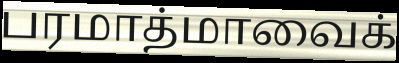
பரமாத்மாவைக்